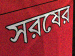
সরষের